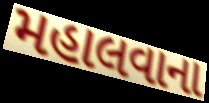
મહાલવાના